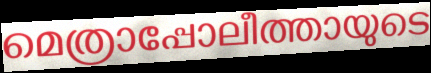
മെത്രാപ്പോലീത്തായുടെ